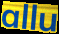
allu